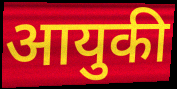
आयुकी